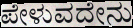
ಪೇಳುವದೇನು